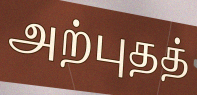
அற்புதத்